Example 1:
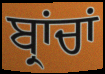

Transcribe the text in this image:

ਬ੍ਰਾਂਚਾਂ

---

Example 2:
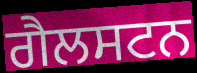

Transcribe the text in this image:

ਗੈਲਸਟਨ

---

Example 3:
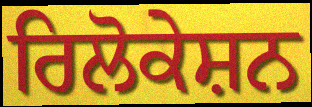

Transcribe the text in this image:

ਰਿਲੋਕੇਸ਼ਨ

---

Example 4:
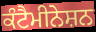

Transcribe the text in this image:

ਕੰਟੈਮੀਨੇਸ਼ਨ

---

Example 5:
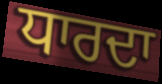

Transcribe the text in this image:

ਧਾਰਦਾ